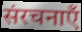
संरचनाएँ